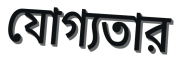
যোগ্যতার